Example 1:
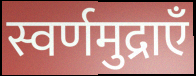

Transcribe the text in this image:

स्वर्णमुद्राएँ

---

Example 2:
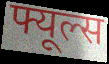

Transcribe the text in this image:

फ्यूल्स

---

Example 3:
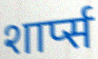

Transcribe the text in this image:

शार्प्स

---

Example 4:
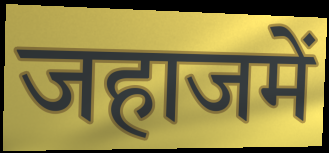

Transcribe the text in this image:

जहाजमें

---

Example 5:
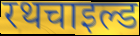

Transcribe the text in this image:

रथचाइल्ड